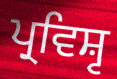
ਪ੍ਰਵਿਸ਼੍ਟ